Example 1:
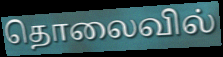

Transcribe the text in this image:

தொலைவில்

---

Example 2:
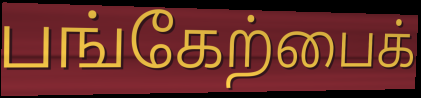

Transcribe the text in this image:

பங்கேற்பைக்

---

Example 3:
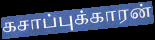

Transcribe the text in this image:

கசாப்புக்காரன்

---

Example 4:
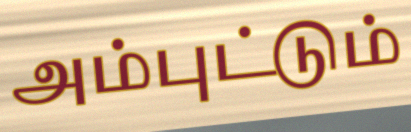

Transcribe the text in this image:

அம்புட்டும்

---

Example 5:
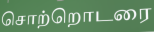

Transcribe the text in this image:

சொற்றொடரை